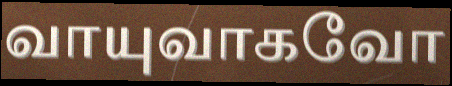
வாயுவாகவோ